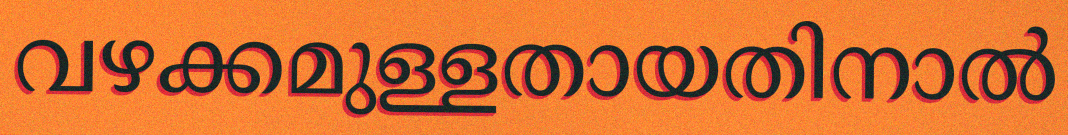
വഴക്കമുള്ളതായതിനാൽ